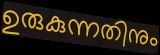
ഉരുകുന്നതിനും